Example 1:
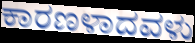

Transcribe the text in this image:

ಕಾರಣಳಾದವಳು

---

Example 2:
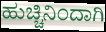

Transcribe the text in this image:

ಹುಚ್ಚಿನಿಂದಾಗಿ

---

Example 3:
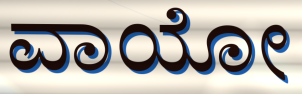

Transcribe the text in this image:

ವಾಯೋ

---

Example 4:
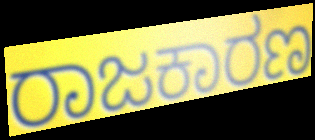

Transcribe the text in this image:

ರಾಜಕಾರಣ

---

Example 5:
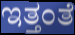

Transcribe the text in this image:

ಇತ್ತಂತೆ